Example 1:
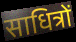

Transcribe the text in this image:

साधित्रों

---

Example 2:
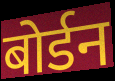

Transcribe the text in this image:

बोर्डन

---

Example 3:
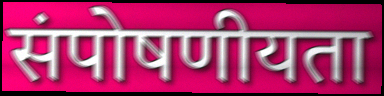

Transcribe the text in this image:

संपोषणीयता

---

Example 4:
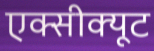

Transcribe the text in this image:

एक्सीक्यूट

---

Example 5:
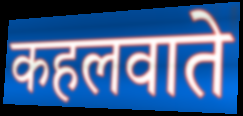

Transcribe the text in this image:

कहलवाते